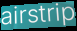
airstrip